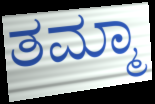
ತಮ್ಮಾ